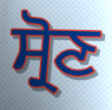
ਸ੍ਰੋਣ